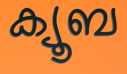
ക്യൂബ